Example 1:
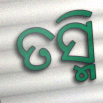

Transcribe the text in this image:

ତସ୍ମି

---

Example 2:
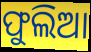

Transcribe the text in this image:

ଫୁଲିଆ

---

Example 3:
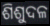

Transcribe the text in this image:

ଶିଶୁଦଳ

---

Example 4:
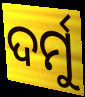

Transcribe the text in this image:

ଦର୍ମୁ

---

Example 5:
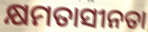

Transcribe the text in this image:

କ୍ଷମତାସୀନତା